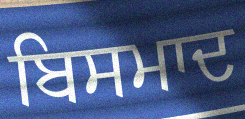
ਬਿਸਮਾਦ